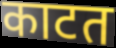
काटत